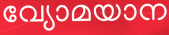
വ്യോമയാന